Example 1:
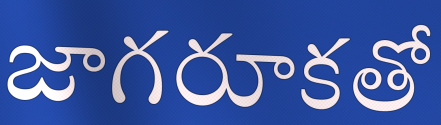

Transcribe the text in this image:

జాగరూకతో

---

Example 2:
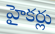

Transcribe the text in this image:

హైకర్లు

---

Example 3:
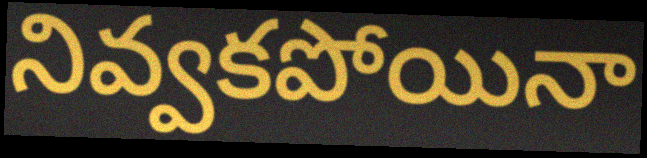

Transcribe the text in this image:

నివ్వకపోయినా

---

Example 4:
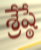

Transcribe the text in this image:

శ్రేష్ఠే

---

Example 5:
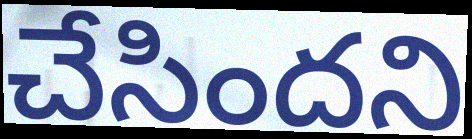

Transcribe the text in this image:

చేసిందని